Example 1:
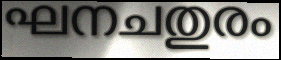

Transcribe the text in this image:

ഘനചതുരം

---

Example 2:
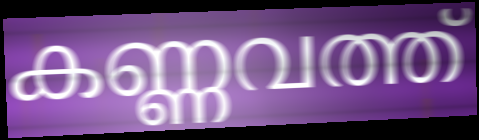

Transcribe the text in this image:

കണ്ണവത്ത്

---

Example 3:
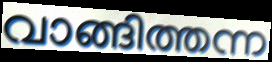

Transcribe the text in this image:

വാങ്ങിത്തന്ന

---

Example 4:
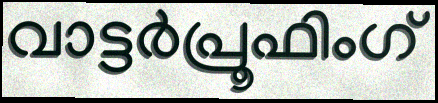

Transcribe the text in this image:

വാട്ടർപ്രൂഫിംഗ്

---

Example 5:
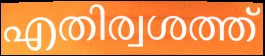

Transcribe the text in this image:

എതിര്വശത്ത്